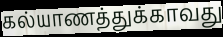
கல்யாணத்துக்காவது